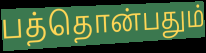
பத்தொன்பதும்